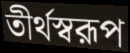
তীর্থস্বরূপ